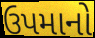
ઉપમાનો